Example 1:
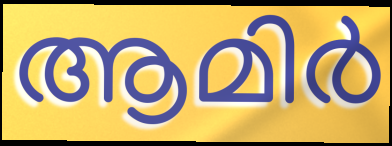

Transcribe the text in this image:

ആമിർ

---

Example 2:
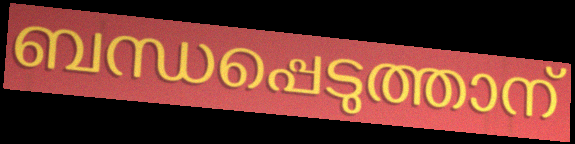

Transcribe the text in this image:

ബന്ധപ്പെടുത്താന്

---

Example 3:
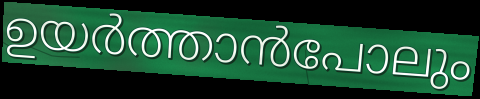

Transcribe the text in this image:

ഉയർത്താൻപോലും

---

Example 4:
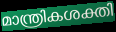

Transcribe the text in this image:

മാന്ത്രികശക്തി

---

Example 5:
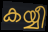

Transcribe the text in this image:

കയ്യീ